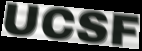
UCSF